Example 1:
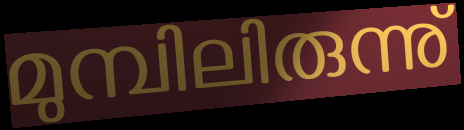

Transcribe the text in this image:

മുമ്പിലിരുന്നു്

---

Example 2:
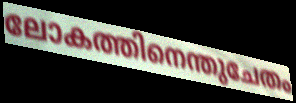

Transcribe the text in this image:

ലോകത്തിനെന്തുചേതം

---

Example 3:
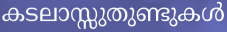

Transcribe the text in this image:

കടലാസ്സുതുണ്ടുകൾ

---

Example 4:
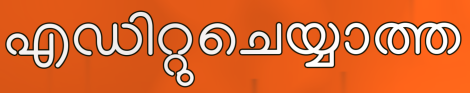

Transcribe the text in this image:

എഡിറ്റുചെയ്യാത്ത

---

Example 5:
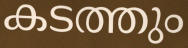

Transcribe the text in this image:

കടത്തും